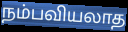
நம்பவியலாத